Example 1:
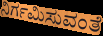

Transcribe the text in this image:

ನಿರ್ಗಮಿಸುವಂತೆ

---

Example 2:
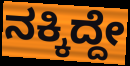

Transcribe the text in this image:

ನಕ್ಕಿದ್ದೇ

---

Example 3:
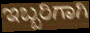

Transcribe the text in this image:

ಇಬ್ಬರಿಗಾಗಿ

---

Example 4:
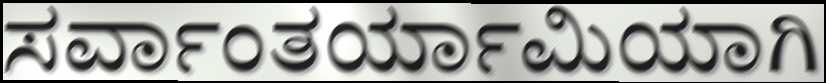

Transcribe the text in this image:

ಸರ್ವಾಂತರ್ಯಾಮಿಯಾಗಿ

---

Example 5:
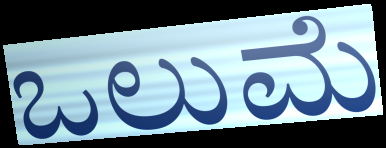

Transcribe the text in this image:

ಒಲುಮೆ